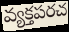
వ్యక్తపరచ